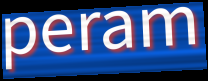
peram